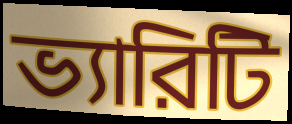
ভ্যারিটি